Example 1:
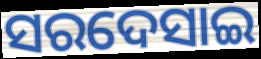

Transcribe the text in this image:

ସରଦେସାଇ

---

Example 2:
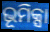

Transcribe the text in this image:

ଭୂମିକ୍ସା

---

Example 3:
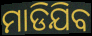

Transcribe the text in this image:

ମାଡିଯିବ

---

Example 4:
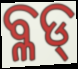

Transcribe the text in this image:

ବ୍ଳଡ୍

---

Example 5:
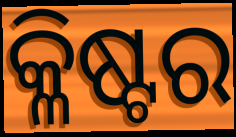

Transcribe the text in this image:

କ୍ଳିଷ୍ଟର